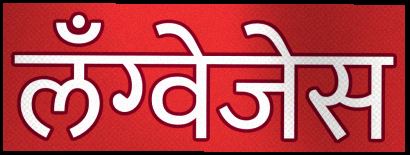
लँग्वेजेस